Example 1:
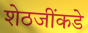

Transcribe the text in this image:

शेठजींकडे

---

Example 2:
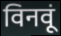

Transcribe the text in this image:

विनवूं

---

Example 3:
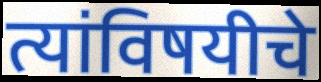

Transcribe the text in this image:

त्यांविषयीचे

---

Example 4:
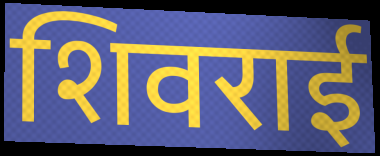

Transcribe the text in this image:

शिवराई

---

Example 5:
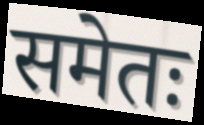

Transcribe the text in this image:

समेतः